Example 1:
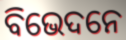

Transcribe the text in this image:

ବିଭେଦନେ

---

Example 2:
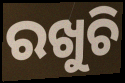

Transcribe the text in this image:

ରଖୁଚି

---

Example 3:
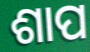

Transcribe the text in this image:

ଶାପ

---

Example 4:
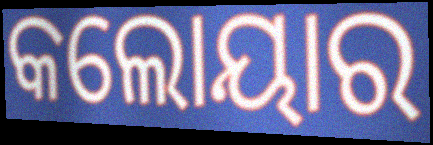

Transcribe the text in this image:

କଲୋୟାର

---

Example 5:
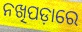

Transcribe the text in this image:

ନଖିପଡ଼ାରେ